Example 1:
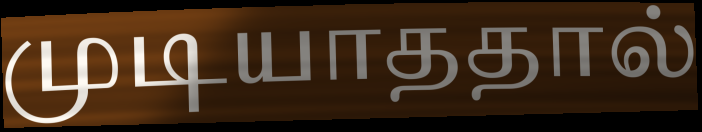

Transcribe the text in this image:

முடியாததால்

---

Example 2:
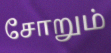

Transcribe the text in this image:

சோறும்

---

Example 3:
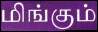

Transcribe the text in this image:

மிங்கும்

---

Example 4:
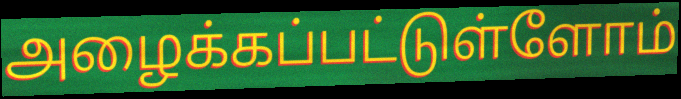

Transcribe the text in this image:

அழைக்கப்பட்டுள்ளோம்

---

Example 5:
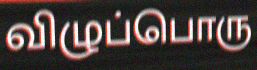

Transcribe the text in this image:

விழுப்பொரு